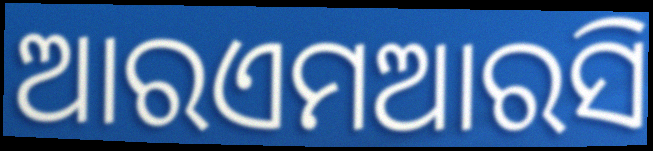
ଆରଏମଆରସି